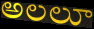
అలలూ